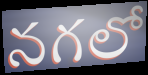
నగలో